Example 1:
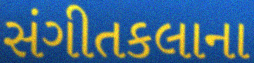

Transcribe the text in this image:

સંગીતકલાના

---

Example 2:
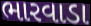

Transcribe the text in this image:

ભારવાડા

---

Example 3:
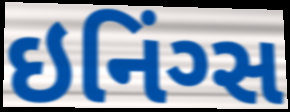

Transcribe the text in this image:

ઇનિંગ્સ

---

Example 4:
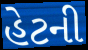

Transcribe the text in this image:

હેટની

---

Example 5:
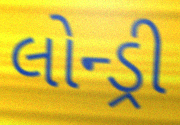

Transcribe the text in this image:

લોન્ડ્રી